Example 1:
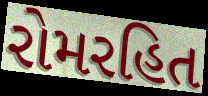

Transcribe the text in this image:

રોમરહિત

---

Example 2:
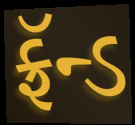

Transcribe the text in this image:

ફ્રૅન્ડ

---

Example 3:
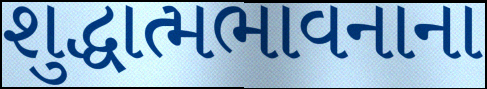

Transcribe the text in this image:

શુદ્ધાત્મભાવનાના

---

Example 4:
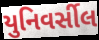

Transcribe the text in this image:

યુનિવર્સીલ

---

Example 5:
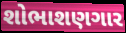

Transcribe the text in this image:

શોભાશણગાર